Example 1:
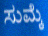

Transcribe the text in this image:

ಸುಮ್ಕೆ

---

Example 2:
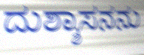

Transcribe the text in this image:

ದುಶ್ಶಾಸನನು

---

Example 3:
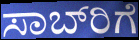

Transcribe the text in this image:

ಸಾಬ್‌ರಿಗೆ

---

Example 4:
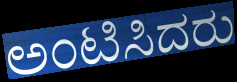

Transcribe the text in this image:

ಅಂಟಿಸಿದರು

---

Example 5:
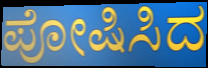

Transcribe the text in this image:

ಪೋಷಿಸಿದ